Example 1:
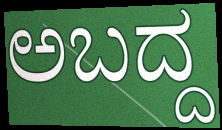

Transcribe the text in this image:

ಅಬದ್ದ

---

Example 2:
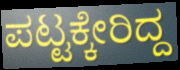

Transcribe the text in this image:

ಪಟ್ಟಕ್ಕೇರಿದ್ದ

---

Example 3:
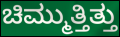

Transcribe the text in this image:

ಚಿಮ್ಮುತ್ತಿತ್ತು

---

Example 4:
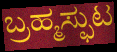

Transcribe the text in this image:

ಬ್ರಹ್ಮಸ್ಫುಟ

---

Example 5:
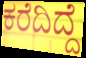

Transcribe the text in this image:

ಕರೆದಿದ್ದೆ